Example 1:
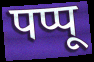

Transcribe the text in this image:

पप्पू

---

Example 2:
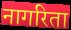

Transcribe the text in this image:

नागरिता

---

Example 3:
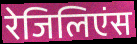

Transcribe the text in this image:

रेजिलिएंस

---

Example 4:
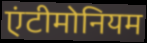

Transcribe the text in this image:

एंटीमोनियम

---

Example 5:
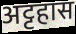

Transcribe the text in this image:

अट्टहास